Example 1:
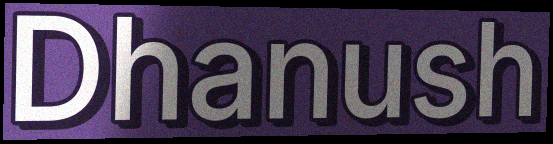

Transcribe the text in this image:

Dhanush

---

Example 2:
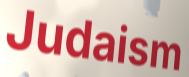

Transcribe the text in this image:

Judaism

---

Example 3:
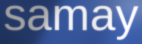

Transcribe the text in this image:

samay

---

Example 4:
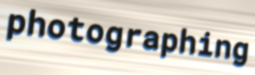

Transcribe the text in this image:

photographing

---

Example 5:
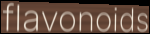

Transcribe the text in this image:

flavonoids